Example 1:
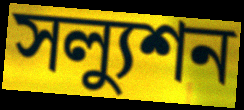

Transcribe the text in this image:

সল্যুশন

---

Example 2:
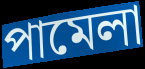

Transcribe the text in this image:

পামেলা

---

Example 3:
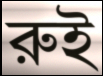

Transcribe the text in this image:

রুই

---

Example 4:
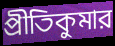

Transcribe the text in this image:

প্রীতিকুমার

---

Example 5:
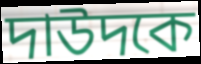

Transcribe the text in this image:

দাউদকে